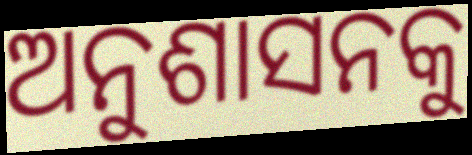
ଅନୁଶାସନକୁ